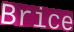
Brice